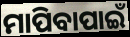
ମାପିବାପାଇଁ